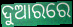
ଦୁଆରରେ